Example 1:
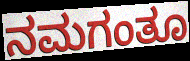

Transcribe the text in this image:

ನಮಗಂತೂ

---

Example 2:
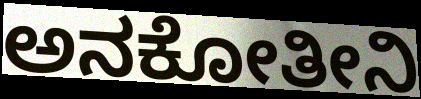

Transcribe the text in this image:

ಅನಕೋತೀನಿ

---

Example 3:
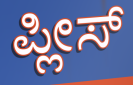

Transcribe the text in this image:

ಪ್ಲೀಸ್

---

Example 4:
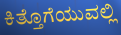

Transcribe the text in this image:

ಕಿತ್ತೊಗೆಯುವಲ್ಲಿ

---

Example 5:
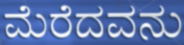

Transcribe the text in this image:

ಮೆರೆದವನು